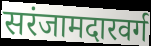
सरंजामदारवर्ग